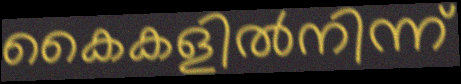
കൈകളിൽനിന്ന്